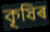
কৃষিৰ